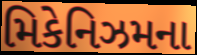
મિકેનિઝમના